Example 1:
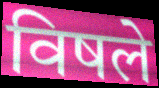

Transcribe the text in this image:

विषले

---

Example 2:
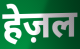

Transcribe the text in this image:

हेज़ल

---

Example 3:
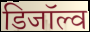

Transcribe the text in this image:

डिजॉल्व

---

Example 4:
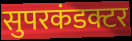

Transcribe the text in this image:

सुपरकंडक्टर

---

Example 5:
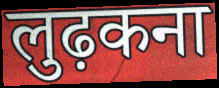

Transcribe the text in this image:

लुढ़कना